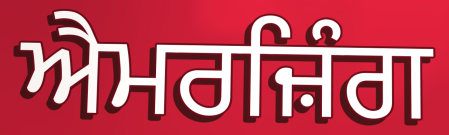
ਐਮਰਜ਼ਿੰਗ